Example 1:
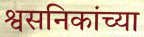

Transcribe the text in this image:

श्वसनिकांच्या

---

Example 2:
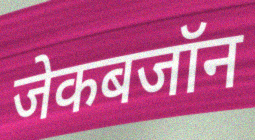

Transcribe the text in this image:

जेकबजॉन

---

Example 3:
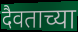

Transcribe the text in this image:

दैवताच्या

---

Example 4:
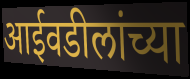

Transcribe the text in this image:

आईवडीलांच्या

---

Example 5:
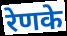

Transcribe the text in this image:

रेणके